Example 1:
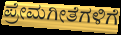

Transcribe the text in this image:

ಪ್ರೇಮಗೀತೆಗಳಿಗೆ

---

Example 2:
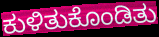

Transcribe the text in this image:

ಕುಳಿತುಕೊಂಡಿತು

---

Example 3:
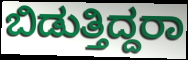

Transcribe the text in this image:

ಬಿಡುತ್ತಿದ್ದರಾ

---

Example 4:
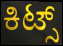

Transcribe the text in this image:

ಕಿಟ್ಸ್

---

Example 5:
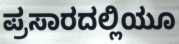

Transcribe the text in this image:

ಪ್ರಸಾರದಲ್ಲಿಯೂ